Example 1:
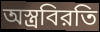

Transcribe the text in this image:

অস্ত্রবিরতি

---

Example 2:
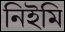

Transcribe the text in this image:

নিইমি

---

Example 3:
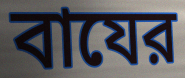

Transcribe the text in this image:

বাযের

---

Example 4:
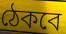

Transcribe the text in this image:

ঠেকবে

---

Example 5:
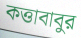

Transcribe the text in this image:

কত্তাবাবুর